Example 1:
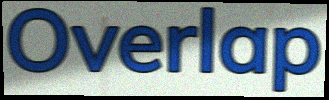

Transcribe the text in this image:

Overlap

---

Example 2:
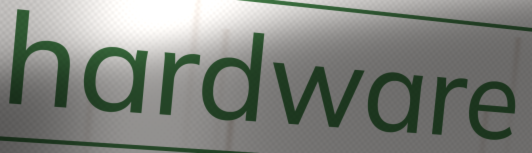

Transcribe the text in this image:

hardware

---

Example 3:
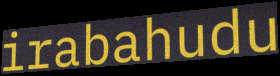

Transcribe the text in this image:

irabahudu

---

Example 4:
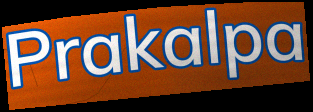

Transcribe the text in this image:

Prakalpa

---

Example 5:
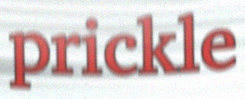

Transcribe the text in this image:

prickle